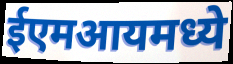
ईएमआयमध्ये